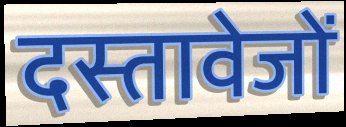
दस्तावेजों